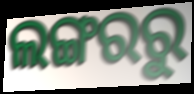
ଲଙ୍ଗରରୁ